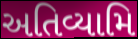
અતિવ્યામિ